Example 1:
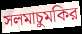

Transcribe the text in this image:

সলমাচুমকির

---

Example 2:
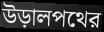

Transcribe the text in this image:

উড়ালপথের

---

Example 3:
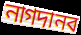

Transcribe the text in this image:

নাগদানব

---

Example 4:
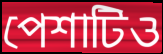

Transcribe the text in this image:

পেশাটিও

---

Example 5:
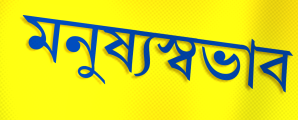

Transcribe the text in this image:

মনুষ্যস্বভাব